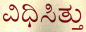
ವಿಧಿಸಿತ್ತು